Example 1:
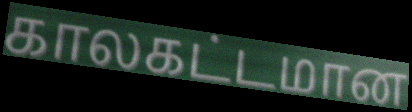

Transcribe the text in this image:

காலகட்டமான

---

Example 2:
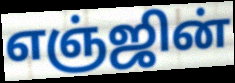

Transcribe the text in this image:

எஞ்ஜின்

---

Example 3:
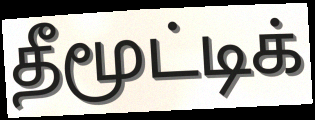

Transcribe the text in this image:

தீமூட்டிக்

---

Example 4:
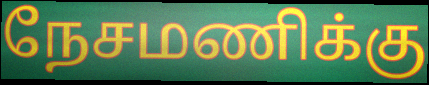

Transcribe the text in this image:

நேசமணிக்கு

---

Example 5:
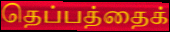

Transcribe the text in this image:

தெப்பத்தைக்